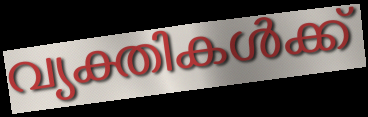
വ്യക്തികൾക്ക്